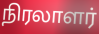
நிரலாளர்